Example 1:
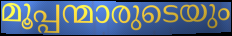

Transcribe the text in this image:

മൂപ്പന്മാരുടെയും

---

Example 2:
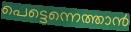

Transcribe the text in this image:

പെട്ടെന്നെത്താൻ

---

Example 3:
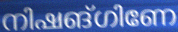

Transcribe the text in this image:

നിഷങ്ഗിണേ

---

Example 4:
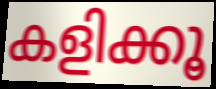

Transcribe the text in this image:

കളിക്കൂ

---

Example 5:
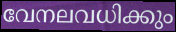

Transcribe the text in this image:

വേനലവധിക്കും